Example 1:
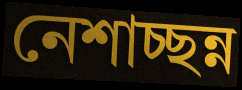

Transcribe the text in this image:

নেশাচ্ছন্ন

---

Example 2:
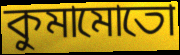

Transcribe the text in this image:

কুমামোতো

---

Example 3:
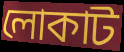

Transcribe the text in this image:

লোকাট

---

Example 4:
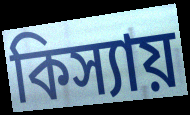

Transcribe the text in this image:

কিস্যায়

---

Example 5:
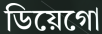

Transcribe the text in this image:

ডিয়েগো